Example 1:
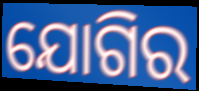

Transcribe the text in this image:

ଯୋଗିର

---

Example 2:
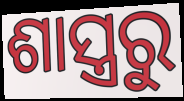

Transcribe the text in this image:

ଶାସ୍ତ୍ରରୁ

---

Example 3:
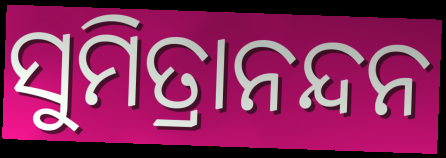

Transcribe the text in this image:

ସୁମିତ୍ରାନନ୍ଦନ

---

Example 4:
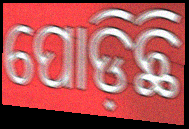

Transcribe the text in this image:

ପୋଡ଼ିଛି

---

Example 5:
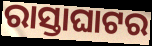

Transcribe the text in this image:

ରାସ୍ତାଘାଟର